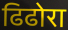
ढिढोरा